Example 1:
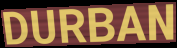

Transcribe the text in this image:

DURBAN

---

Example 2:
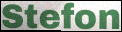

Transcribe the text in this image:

Stefon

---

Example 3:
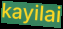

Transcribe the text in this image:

kayilai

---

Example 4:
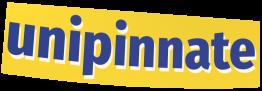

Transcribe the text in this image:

unipinnate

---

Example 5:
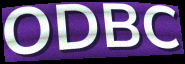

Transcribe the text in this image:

ODBC